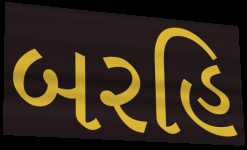
બરહિ